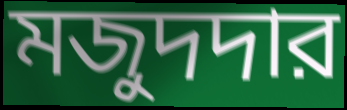
মজুদদার